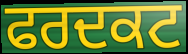
ਫਰਦਕਟ